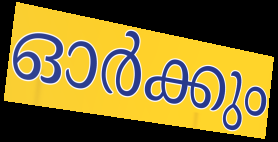
ഓർക്കും